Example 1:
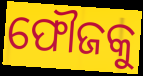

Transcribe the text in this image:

ଫୌଜକୁ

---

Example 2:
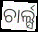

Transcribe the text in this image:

ଚାର୍ଲ୍ସ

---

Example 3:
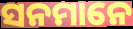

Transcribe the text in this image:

ସନମାନେ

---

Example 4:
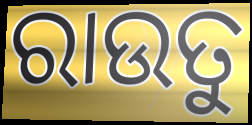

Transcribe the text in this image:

ରାଉତୁ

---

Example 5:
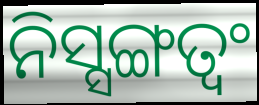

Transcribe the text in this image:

ନିସ୍ସଙ୍ଗତ୍ୱଂ